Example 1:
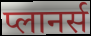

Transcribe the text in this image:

प्लानर्स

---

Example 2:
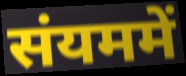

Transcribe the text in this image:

संयममें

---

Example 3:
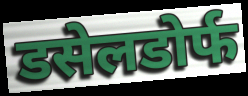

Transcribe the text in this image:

डसेलडोर्फ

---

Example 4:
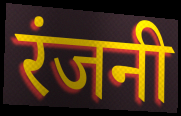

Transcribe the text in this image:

रंजनी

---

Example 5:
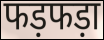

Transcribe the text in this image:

फड़फड़ा